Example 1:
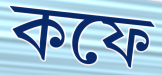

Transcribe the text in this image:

কফে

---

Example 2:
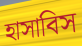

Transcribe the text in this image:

হাসাবিস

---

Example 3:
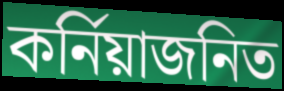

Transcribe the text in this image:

কর্নিয়াজনিত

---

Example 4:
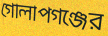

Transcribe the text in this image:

গোলাপগঞ্জের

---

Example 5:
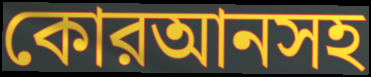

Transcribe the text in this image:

কোরআনসহ